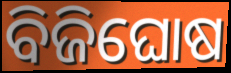
ବିଜିଘୋଷ